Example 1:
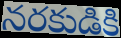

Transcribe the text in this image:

నరకుడికి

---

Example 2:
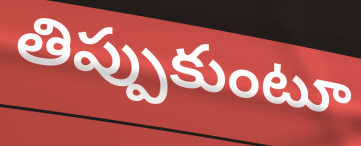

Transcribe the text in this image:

తిప్పుకుంటూ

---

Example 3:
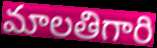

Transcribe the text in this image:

మాలతిగారి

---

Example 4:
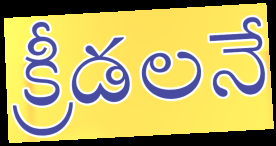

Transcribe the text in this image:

క్రీడలనే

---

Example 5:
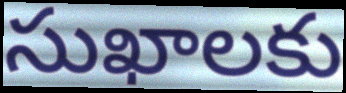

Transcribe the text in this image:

సుఖాలకు